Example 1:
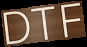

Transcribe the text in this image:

DTF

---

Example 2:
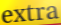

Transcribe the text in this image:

extra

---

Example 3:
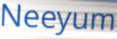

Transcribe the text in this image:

Neeyum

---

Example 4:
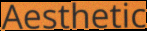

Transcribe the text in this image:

Aesthetic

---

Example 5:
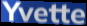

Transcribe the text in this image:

Yvette